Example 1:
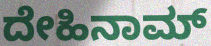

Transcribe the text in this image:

ದೇಹಿನಾಮ್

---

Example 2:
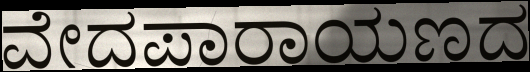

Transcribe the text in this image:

ವೇದಪಾರಾಯಣದ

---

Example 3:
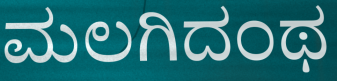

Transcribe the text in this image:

ಮಲಗಿದಂಥ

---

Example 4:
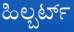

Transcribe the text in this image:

ಹಿಲ್ಬರ್ಟ್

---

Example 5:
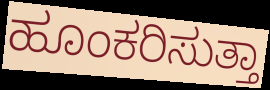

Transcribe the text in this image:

ಹೂಂಕರಿಸುತ್ತಾ